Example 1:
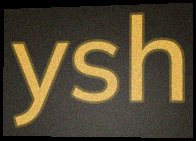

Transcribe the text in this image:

ysh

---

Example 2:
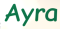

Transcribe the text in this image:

Ayra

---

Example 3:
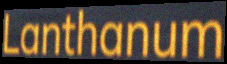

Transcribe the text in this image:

Lanthanum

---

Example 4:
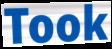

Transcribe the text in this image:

Took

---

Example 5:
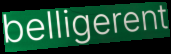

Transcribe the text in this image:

belligerent